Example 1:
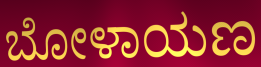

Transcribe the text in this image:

ಬೋಳಾಯಣ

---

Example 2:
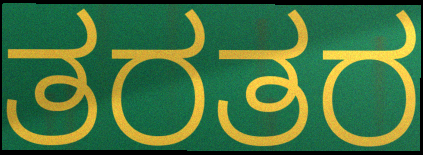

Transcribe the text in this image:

ತರತರ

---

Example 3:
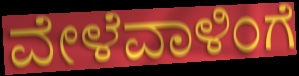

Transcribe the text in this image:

ವೇಳೆವಾಳಿಂಗೆ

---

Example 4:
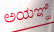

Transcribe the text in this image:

ಅಯಞ್ಹಿ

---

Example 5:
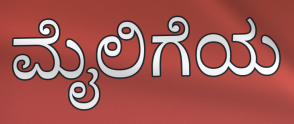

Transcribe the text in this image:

ಮೈಲಿಗೆಯ